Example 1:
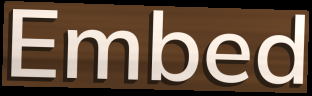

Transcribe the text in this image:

Embed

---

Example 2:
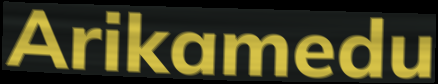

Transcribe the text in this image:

Arikamedu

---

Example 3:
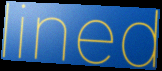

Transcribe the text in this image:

lined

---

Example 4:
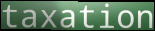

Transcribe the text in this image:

taxation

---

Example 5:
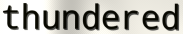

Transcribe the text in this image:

thundered